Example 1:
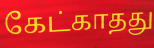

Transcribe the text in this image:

கேட்காதது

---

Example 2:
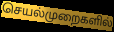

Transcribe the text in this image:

செயல்முறைகளில்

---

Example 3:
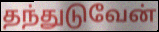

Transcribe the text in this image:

தந்துடுவேன்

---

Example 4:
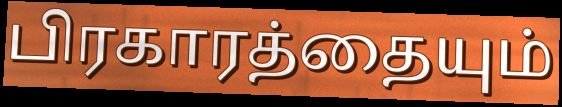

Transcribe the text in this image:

பிரகாரத்தையும்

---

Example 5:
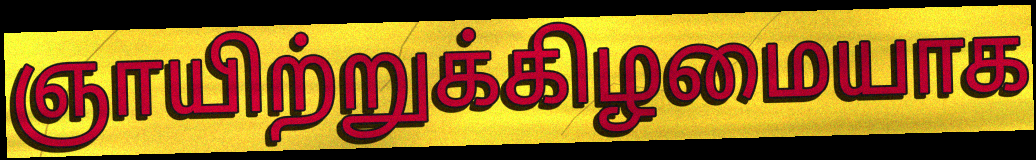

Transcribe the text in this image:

ஞாயிற்றுக்கிழமையாக